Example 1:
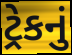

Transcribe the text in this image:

ટ્રેકનું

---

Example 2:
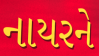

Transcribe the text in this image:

નાયરને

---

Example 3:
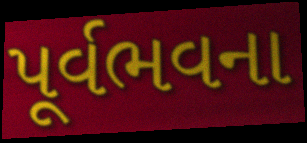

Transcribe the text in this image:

પૂર્વભવના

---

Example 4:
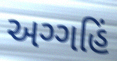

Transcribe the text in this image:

અગ્ગહિં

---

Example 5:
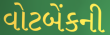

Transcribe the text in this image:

વોટબેંકની